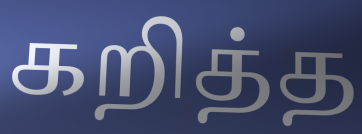
கறித்த